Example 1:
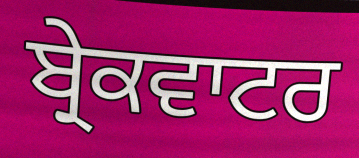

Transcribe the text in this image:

ਬ੍ਰੇਕਵਾਟਰ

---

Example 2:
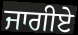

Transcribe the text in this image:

ਜਾਗੀਏ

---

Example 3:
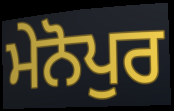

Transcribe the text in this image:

ਮੇਨੋਪੁਰ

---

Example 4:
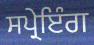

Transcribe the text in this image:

ਸਪ੍ਰੇਇੰਗ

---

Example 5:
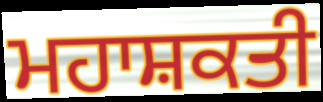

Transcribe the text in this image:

ਮਹਾਸ਼ਕਤੀ